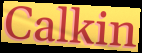
Calkin